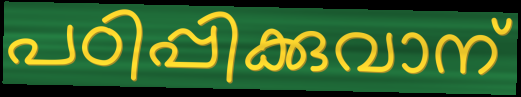
പഠിപ്പിക്കുവാന്